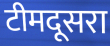
टीमदूसरा